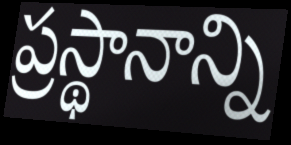
ప్రస్థానాన్ని